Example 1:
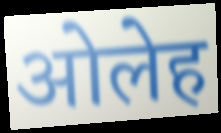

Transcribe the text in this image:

ओलेह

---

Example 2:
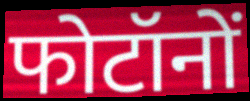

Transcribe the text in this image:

फोटॉनों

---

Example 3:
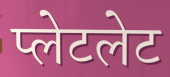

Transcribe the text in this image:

प्लेटलेट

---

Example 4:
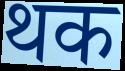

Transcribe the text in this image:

थक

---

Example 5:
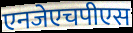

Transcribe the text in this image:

एनजेएचपीएस